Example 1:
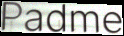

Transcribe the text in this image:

Padme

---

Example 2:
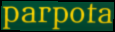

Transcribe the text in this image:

parpota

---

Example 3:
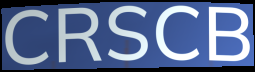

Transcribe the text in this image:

CRSCB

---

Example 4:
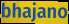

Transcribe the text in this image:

bhajano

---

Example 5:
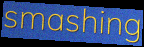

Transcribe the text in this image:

smashing